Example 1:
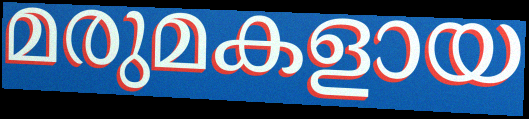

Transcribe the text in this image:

മരുമകളായ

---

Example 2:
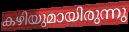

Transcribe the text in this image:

കഴിയുമായിരുന്നു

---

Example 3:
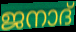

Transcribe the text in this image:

ജനാദ്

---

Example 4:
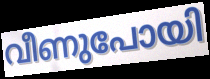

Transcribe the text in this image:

വീണുപോയി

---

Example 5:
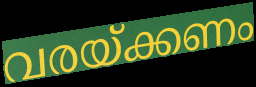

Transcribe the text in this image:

വരയ്ക്കണം